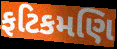
ફટિકમણિ